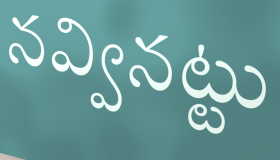
నవ్వినట్టు